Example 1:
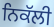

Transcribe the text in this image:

ਨਿਕੱਲੀ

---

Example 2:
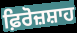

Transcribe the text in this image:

ਫ਼ਿਰੋਜ਼ਸ਼ਾਹ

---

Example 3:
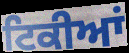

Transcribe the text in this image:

ਟਿਕੀਆਂ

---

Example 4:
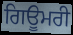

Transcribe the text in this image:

ਗਿਊਮਰੀ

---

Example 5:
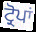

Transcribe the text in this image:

ਟ੍ਰੋਪਾਂ